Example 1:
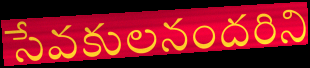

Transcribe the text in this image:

సేవకులనందరిని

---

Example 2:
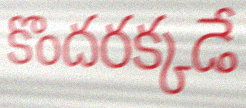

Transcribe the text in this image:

కొందరక్కడే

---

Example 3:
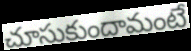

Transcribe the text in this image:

చూసుకుందామంటే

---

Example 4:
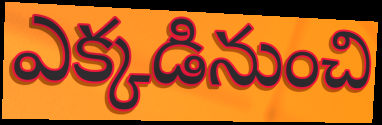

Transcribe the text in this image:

ఎక్కడినుంచి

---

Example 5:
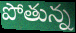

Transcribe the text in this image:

పోతున్న